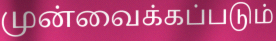
முன்வைக்கப்படும்